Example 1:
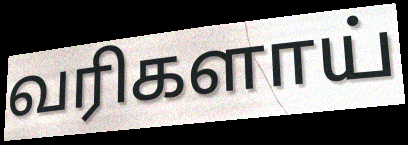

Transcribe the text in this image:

வரிகளாய்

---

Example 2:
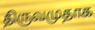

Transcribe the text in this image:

திருவமுதாக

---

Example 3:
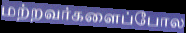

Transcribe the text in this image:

மற்றவர்களைப்போல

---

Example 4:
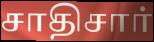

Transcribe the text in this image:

சாதிசார்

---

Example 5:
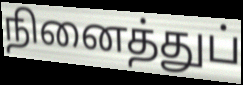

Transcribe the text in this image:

நினைத்துப்